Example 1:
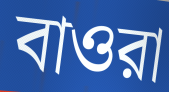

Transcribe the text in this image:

বাওরা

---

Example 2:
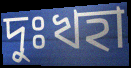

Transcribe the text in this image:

দুঃখহা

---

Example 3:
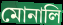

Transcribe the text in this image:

মোনালি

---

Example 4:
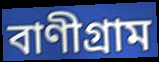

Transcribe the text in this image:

বাণীগ্রাম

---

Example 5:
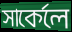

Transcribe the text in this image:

সার্কেলে